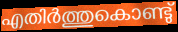
എതിർത്തുകൊണ്ടു്